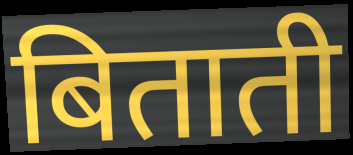
बिताती